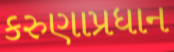
કરુણાપ્રધાન